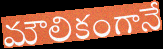
మౌలికంగానే